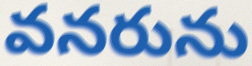
వనరును